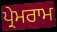
ਪ੍ਰੇਮਰਾਮ